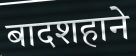
बादशहाने